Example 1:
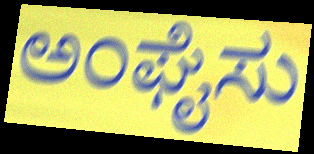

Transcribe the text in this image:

ಅಂಘೈಸು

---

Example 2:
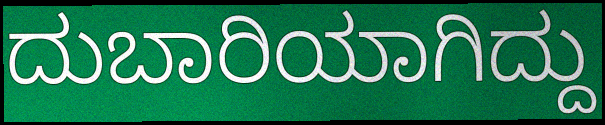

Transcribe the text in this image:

ದುಬಾರಿಯಾಗಿದ್ದು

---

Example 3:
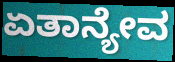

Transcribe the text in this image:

ಏತಾನ್ಯೇವ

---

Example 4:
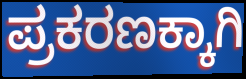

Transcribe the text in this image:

ಪ್ರಕರಣಕ್ಕಾಗಿ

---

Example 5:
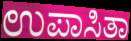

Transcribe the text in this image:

ಉಪಾಸಿತಾ